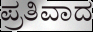
ಪ್ರತಿವಾದ